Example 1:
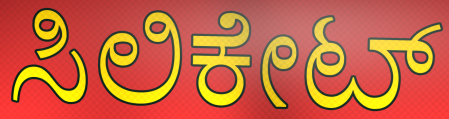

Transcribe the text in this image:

ಸಿಲಿಕೇಟ್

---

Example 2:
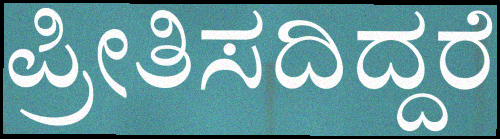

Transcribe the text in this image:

ಪ್ರೀತಿಸದಿದ್ದರೆ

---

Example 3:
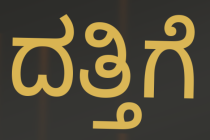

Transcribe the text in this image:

ದತ್ತಿಗೆ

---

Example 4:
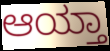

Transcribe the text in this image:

ಆಯ್ತಾ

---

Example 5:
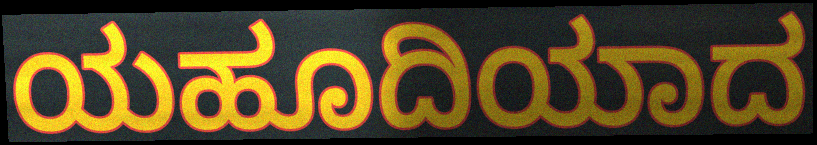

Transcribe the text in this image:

ಯಹೂದಿಯಾದ